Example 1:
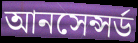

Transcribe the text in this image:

আনসেন্সর্ড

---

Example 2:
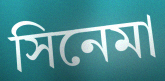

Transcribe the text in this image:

সিনেমা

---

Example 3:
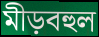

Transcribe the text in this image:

মীড়বহুল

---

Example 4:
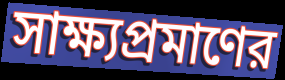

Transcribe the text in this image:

সাক্ষ্যপ্রমাণের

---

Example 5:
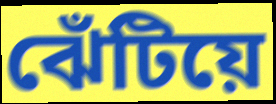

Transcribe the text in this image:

ঝেঁটিয়ে